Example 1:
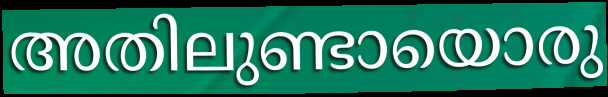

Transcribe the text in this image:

അതിലുണ്ടായൊരു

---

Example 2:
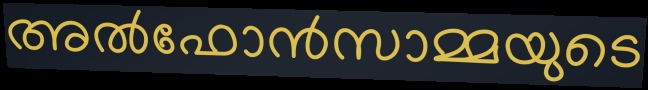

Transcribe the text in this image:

അൽഫോൻസാമ്മയുടെ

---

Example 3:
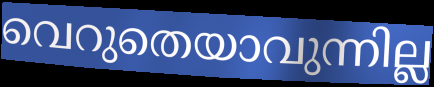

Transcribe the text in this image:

വെറുതെയാവുന്നില്ല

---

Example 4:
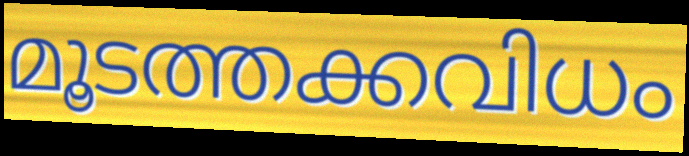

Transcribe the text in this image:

മൂടത്തക്കവിധം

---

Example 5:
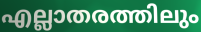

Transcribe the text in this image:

എല്ലാതരത്തിലും